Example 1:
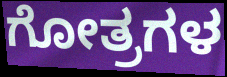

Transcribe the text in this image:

ಗೋತ್ರಗಳ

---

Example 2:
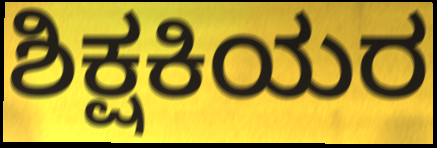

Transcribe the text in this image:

ಶಿಕ್ಷಕಿಯರ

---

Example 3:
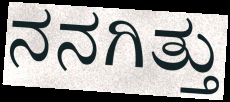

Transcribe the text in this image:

ನನಗಿತ್ತು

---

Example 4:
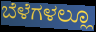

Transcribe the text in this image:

ಬೆಳೆಗಳಲ್ಲೂ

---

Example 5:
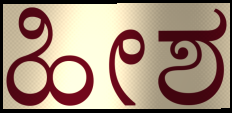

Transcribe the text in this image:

ಹೀಶ